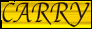
CARRY